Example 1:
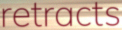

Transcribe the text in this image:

retracts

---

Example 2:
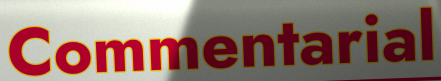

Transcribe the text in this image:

Commentarial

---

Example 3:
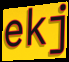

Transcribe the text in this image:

ekj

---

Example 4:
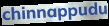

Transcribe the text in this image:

chinnappudu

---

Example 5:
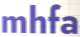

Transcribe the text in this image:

mhfa